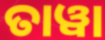
ତାୱା